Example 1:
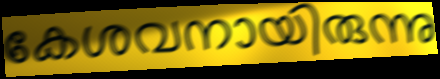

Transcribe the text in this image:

കേശവനായിരുന്നു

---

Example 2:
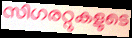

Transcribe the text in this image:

സിഗരറ്റുകളുടെ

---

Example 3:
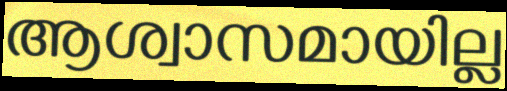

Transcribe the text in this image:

ആശ്വാസമായില്ല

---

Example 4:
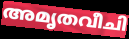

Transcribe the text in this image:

അമൃതവീചി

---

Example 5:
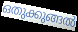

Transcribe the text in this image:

ഒതുക്കുങ്ങൽ